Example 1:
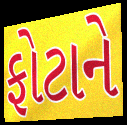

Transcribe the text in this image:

ફોટાને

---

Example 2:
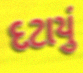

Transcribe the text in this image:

દટાયું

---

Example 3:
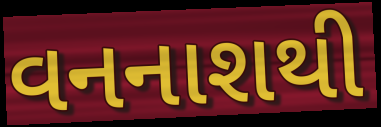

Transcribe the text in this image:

વનનાશથી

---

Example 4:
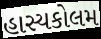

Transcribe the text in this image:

હાસ્યકોલમ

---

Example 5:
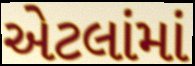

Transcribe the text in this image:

એટલાંમાં